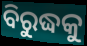
ବିରୁଦ୍ଧକୁ